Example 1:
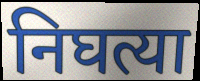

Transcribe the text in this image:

निघत्या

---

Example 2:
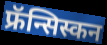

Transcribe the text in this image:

फ्रॅन्सिस्कन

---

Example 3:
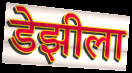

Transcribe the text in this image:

डेझीला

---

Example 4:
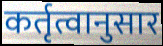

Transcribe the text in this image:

कर्तृत्वानुसार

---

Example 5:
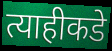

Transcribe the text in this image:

त्याहीकडे